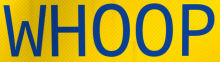
WHOOP